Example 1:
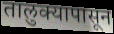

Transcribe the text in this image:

तालुक्यापासून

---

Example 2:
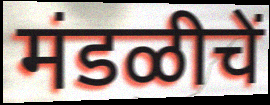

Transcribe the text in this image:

मंडळीचें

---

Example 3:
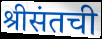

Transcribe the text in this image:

श्रीसंतची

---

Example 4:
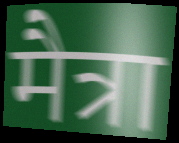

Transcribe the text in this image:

मैत्रा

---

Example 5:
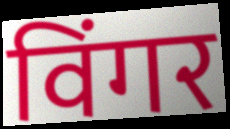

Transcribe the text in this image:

विंगर